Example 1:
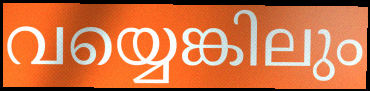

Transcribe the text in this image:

വയ്യെങ്കിലും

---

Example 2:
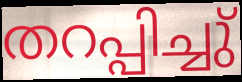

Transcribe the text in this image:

തറപ്പിച്ചു്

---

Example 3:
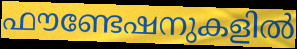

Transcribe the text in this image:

ഫൗണ്ടേഷനുകളിൽ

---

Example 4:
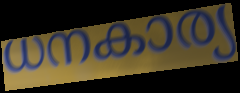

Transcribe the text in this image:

ധനകാര്യ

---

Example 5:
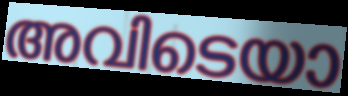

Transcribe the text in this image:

അവിടെയാ